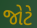
જોટે